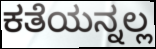
ಕತೆಯನ್ನಲ್ಲ